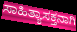
ಸಾಹಿತ್ಯಾಸಕ್ತನಾಗಿ